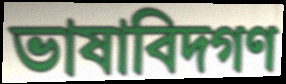
ভাষাবিদগণ